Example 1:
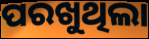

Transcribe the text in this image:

ପରଖୁଥିଲା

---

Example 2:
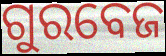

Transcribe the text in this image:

ଗୁରବେଜ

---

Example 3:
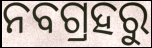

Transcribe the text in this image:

ନବଗ୍ରହରୁ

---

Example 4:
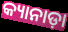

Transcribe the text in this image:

କ୍ୟାନାଡ଼ା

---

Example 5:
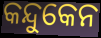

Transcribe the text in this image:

କନ୍ଦୁକେନ